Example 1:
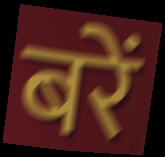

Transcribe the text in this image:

बरें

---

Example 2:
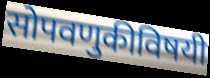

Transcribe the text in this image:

सोपवणुकीविषयी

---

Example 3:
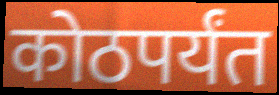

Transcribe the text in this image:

कोठपर्यंत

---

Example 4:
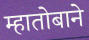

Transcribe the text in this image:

म्हातोबाने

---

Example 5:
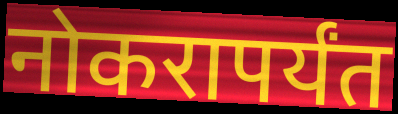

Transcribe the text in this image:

नोकरापर्यंत